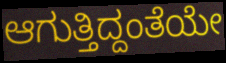
ಆಗುತ್ತಿದ್ದಂತೆಯೇ